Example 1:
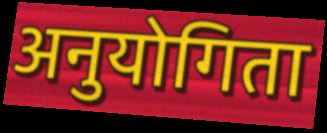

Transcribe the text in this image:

अनुयोगिता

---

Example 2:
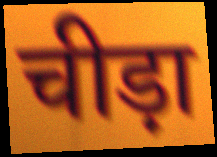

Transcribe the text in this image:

चीड़ा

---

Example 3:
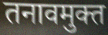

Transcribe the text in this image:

तनावमुक्त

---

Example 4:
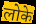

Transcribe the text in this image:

लोके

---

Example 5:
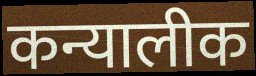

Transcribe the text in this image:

कन्यालीक